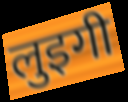
लुइगी